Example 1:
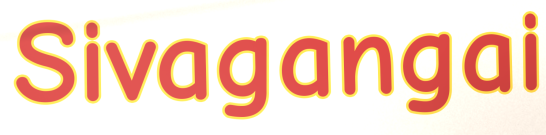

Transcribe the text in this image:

Sivagangai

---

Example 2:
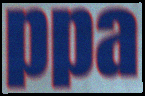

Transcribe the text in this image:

ppa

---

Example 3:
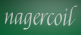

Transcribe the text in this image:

nagercoil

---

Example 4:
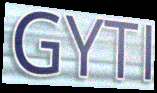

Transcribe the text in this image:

GYTI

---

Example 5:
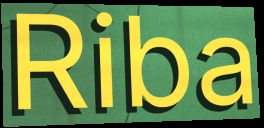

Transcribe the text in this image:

Riba